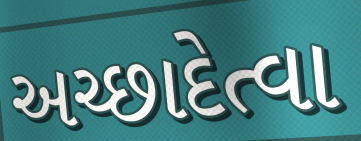
અચ્છાદેત્વા